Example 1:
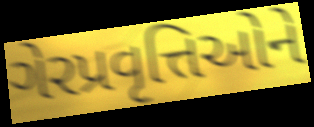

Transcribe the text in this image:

ગેરપ્રવૃત્તિઓને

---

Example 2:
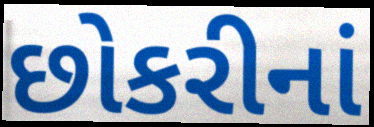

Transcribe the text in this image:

છોકરીનાં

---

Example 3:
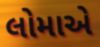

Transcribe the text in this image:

લોમાએ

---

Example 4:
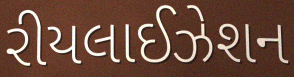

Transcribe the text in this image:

રીયલાઈઝેશન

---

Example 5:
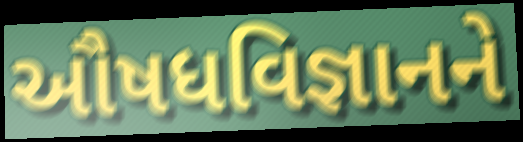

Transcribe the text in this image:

ઔષધવિજ્ઞાનને